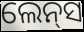
ଲେନ୍‍ସ